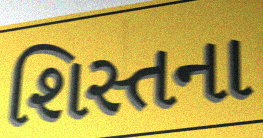
શિસ્તના